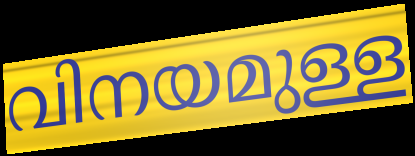
വിനയമുള്ള